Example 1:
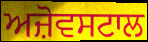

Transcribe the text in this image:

ਅਜ਼ੋਵਸਟਾਲ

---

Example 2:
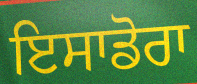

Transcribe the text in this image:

ਇਸਾਡੋਰਾ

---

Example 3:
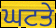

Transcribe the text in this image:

ਘਟਤੇ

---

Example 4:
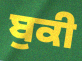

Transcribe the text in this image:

ਬੁਕੀ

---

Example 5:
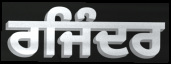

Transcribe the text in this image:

ਰਜਿੰਦਰ